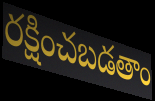
రక్షించబడతాం